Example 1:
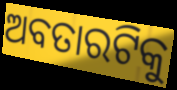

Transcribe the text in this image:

ଅବତାରଟିକୁ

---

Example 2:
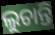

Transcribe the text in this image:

ଲୁଚାନ୍ତି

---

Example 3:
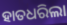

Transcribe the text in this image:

ହାତଧରିଲା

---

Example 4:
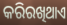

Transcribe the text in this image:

କରିରଖିଥାଏ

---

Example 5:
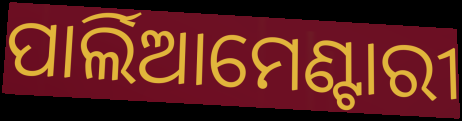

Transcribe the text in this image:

ପାର୍ଲିଆମେଣ୍ଟାରୀ